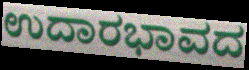
ಉದಾರಭಾವದ